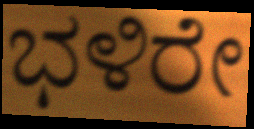
ಭಳಿರೇ